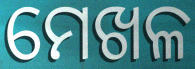
ମେଖଳ